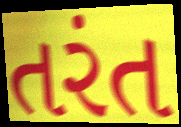
તરંત